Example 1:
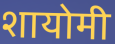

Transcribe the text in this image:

शायोमी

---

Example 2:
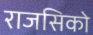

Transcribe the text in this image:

राजसिको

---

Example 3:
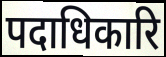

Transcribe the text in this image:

पदाधिकारि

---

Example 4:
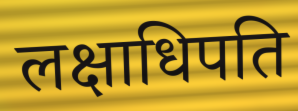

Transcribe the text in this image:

लक्षाधिपति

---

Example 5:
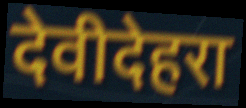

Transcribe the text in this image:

देवीदेहरा